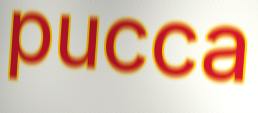
pucca